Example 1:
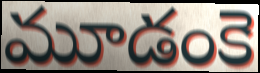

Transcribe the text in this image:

మూడంకె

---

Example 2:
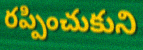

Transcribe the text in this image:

రప్పించుకుని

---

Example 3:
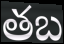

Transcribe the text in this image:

తబ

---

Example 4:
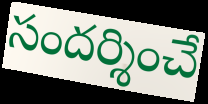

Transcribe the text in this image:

సందర్శించే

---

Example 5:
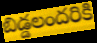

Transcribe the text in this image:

బిడ్డలందరికి